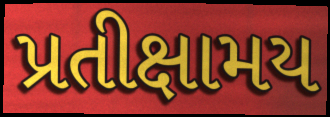
પ્રતીક્ષામય